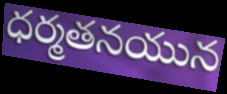
ధర్మతనయున